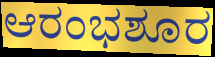
ಆರಂಭಶೂರ